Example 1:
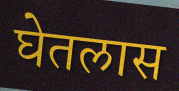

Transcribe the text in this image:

घेतलास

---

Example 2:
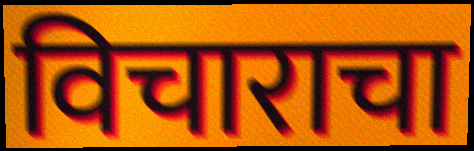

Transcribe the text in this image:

विचाराचा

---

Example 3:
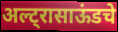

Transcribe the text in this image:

अल्ट्रासाऊंडचे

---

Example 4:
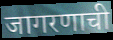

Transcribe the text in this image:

जागरणाची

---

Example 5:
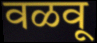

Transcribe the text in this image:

वळवू